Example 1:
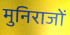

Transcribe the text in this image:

मुनिराजों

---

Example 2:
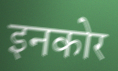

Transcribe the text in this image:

इनकोर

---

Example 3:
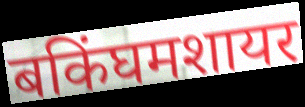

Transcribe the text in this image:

बकिंघमशायर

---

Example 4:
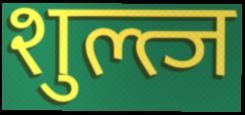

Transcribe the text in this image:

शुल्त्ज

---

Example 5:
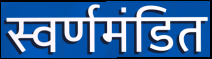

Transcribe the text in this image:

स्वर्णमंडित